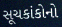
સૂચકાંકોનો